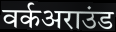
वर्कअराउंड